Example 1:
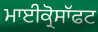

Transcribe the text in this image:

ਮਾਈਕ੍ਰੋਸਾੱਫਟ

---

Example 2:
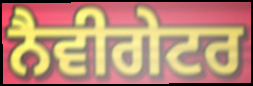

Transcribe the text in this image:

ਨੈਵੀਗੇਟਰ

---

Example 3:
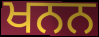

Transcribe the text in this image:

ਖਨਨ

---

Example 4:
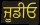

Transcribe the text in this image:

ਜੂਡੀਓ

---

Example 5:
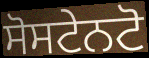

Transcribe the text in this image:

ਸੋਸਟੇਨਟੋ